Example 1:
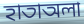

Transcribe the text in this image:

হাতাঅলা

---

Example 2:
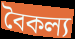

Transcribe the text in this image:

বৈকল্য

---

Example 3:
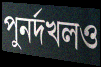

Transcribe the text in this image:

পুনর্দখলও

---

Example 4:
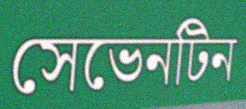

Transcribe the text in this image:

সেভেনটিন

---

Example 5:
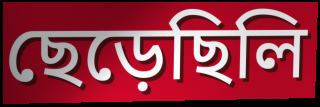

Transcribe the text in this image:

ছেড়েছিলি